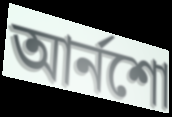
আর্নশো